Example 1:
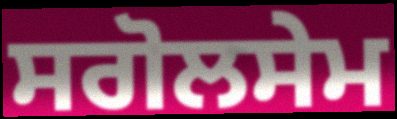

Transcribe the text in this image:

ਸਗੋਲਸੇਮ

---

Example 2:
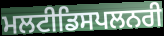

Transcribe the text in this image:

ਮਲਟੀਡਿਸਪਲਨਰੀ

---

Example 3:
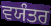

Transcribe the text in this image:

ਵਯੰਤਰ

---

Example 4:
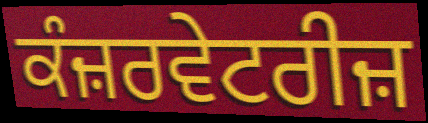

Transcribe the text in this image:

ਕੰਜ਼ਰਵੇਟਰੀਜ਼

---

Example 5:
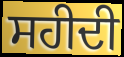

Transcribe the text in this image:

ਸਹੀਦੀ